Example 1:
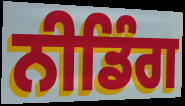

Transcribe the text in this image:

ਨੀਡਿੰਗ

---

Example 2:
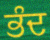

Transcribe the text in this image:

ਭੰਦ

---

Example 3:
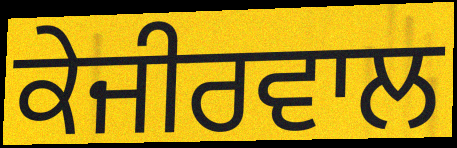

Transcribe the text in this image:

ਕੇਜੀਰਵਾਲ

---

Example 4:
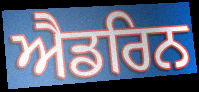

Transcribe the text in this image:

ਐਡਰਿਨ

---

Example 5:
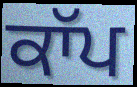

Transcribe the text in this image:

ਕਾੱਪ